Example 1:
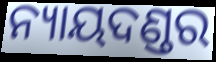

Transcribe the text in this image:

ନ୍ୟାୟଦଣ୍ଡର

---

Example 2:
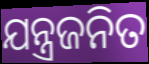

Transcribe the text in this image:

ଯନ୍ତ୍ରଜନିତ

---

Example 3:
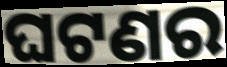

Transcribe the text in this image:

ଘଟଣର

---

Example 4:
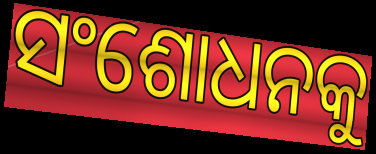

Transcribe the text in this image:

ସଂଶୋଧନକୁ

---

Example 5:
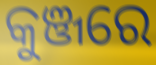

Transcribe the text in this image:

କୁଞ୍ଜରେ